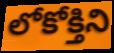
లోకోక్తిని